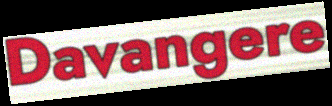
Davangere